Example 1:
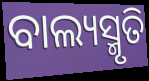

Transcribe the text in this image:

ବାଲ୍ୟସ୍ମୃତି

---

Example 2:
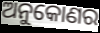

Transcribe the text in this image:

ଅନୁକୋଣର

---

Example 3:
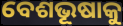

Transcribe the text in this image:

ବେଶଭୂଷାକୁ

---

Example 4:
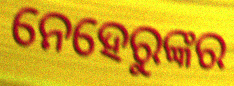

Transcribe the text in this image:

ନେହେରୁଙ୍କର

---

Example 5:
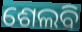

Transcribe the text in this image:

ଶେଲବି